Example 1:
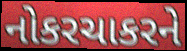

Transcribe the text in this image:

નોકરચાકરને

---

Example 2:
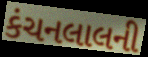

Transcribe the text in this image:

કંચનલાલની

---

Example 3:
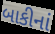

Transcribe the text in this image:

બાકીનાં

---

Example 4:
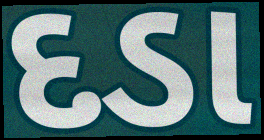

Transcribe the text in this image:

દડા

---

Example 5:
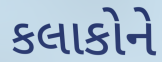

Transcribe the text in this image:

કલાકોને